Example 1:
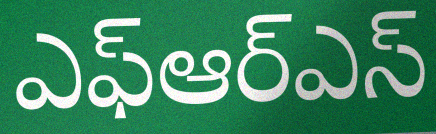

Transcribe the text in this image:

ఎఫ్ఆర్ఎస్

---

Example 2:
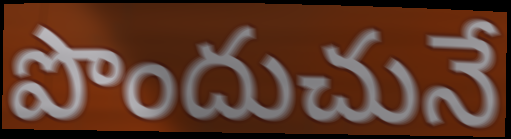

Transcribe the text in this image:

పొందుచునే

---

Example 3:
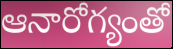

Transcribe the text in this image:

ఆనారోగ్యంతో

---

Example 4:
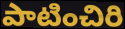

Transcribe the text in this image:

పాటించిరి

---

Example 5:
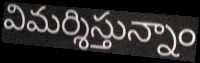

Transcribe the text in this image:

విమర్శిస్తున్నాం